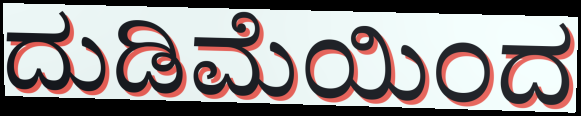
ದುಡಿಮೆಯಿಂದ